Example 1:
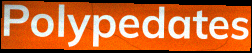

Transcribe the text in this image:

Polypedates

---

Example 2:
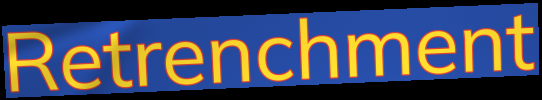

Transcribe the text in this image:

Retrenchment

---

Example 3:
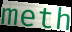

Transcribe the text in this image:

meth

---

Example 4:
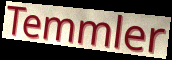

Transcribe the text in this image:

Temmler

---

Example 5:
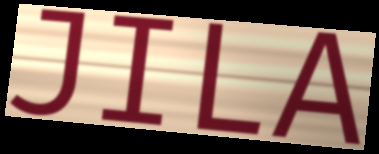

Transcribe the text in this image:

JILA